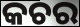
କଚର